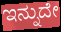
ಇನ್ನುದೇ